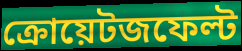
ক্রোয়েটজফেল্ট